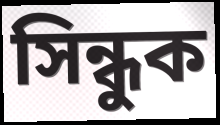
সিন্ধুক